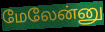
மேலேன்னு